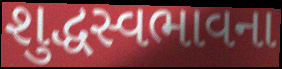
શુદ્ધસ્વભાવના